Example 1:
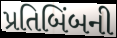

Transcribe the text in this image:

પ્રતિબિંબની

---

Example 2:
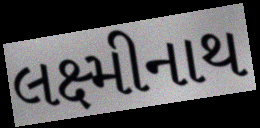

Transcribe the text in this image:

લક્ષ્મીનાથ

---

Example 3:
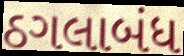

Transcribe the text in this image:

ઠગલાબંધ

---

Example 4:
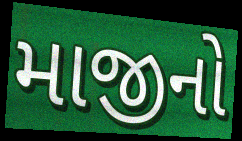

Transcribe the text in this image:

માજીનો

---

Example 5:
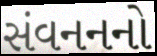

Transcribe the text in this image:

સંવનનનો